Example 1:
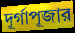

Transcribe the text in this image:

দূর্গাপূজার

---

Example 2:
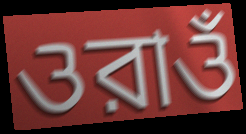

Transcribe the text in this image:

ওরাওঁ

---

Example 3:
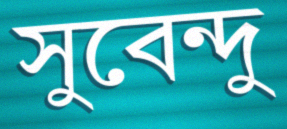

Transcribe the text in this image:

সুবেন্দু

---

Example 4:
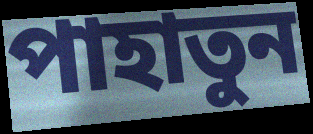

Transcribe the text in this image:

পাহাতুন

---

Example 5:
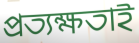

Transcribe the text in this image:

প্রত্যক্ষতাই